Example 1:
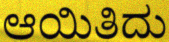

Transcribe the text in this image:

ಆಯಿತಿದು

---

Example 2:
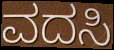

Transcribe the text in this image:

ವದಸಿ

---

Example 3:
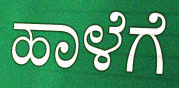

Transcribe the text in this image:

ಹಾಳೆಗೆ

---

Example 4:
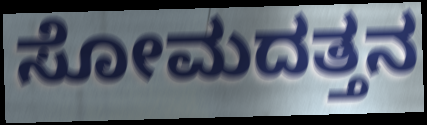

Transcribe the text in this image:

ಸೋಮದತ್ತನ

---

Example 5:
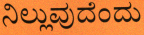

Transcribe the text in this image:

ನಿಲ್ಲುವುದೆಂದು